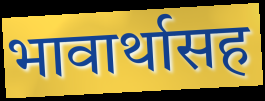
भावार्थासह